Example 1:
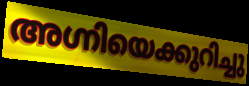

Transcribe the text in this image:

അഗ്നിയെക്കുറിച്ചു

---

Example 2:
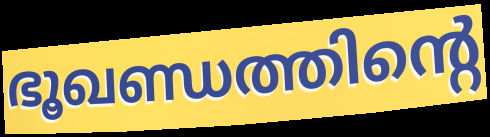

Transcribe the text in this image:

ഭൂഖണ്ഡത്തിന്റെ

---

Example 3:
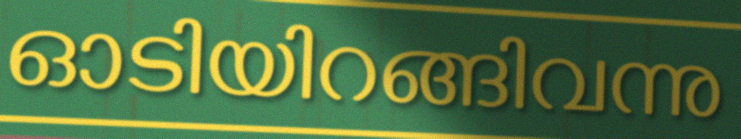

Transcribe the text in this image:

ഓടിയിറങ്ങിവന്നു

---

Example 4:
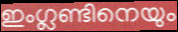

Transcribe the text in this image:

ഇംഗ്ലണ്ടിനെയും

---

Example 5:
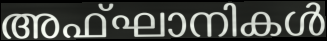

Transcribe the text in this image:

അഫ്ഘാനികൾ